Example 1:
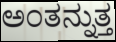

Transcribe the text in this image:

ಅಂತನ್ನುತ್ತ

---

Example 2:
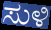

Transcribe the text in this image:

ಸುಳಿ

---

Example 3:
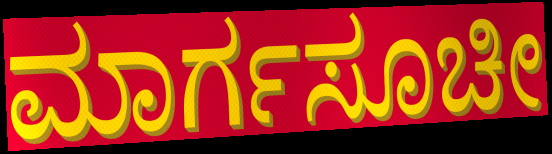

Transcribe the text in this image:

ಮಾರ್ಗಸೂಚೀ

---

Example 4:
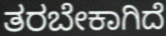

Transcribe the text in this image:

ತರಬೇಕಾಗಿದೆ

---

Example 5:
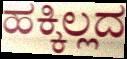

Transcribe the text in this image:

ಹಕ್ಕಿಲ್ಲದ